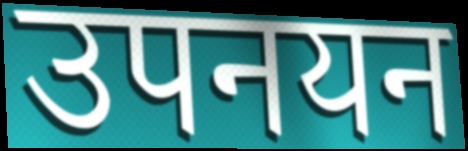
उपनयन